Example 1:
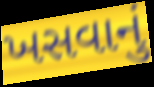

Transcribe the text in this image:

ખસવાનું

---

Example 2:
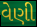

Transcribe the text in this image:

વેણી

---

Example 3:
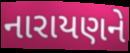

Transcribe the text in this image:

નારાયણને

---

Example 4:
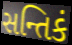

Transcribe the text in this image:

સન્તિકં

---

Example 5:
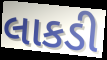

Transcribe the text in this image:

લાકડી